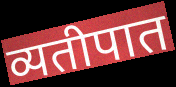
व्यतीपात